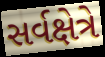
સર્વક્ષેત્રે